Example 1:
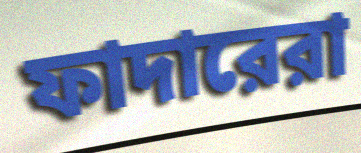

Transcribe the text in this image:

ফাদারেরা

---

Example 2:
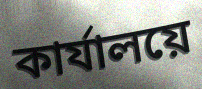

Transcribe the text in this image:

কার্যালয়ে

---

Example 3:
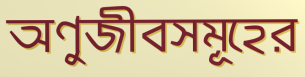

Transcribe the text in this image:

অণুজীবসমূহের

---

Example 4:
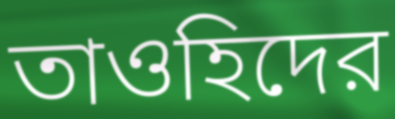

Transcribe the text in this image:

তাওহিদের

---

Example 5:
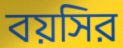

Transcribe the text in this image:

বয়সির